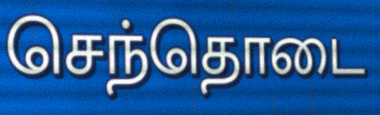
செந்தொடை